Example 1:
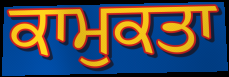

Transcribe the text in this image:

ਕਾਮੁਕਤਾ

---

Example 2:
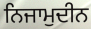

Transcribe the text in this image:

ਨਿਜਾਮੁਦੀਨ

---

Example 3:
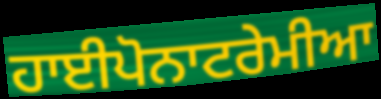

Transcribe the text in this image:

ਹਾਈਪੋਨਾਟਰੇਮੀਆ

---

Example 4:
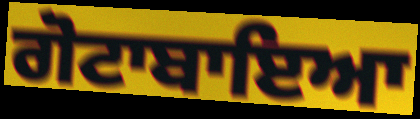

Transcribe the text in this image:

ਗੋਟਾਬਾਇਆ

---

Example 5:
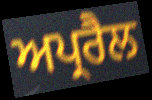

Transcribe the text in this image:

ਅਪ੍ਰਰੈਲ